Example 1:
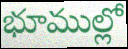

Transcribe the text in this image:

భూముల్లో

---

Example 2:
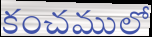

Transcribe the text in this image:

కంచములో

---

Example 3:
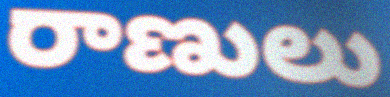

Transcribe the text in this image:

రాణులు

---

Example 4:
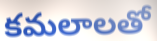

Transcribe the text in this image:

కమలాలతో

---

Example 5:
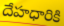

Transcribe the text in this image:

దేహధారికి